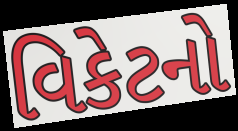
વિકેટનો